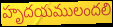
హృదయములందలి